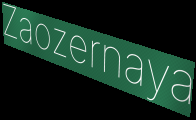
Zaozernaya